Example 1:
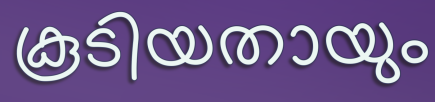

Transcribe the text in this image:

കൂടിയതായും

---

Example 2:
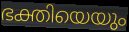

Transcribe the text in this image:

ഭക്തിയെയും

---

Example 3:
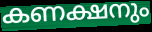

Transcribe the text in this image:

കണക്ഷനും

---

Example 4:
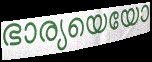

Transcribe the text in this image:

ഭാര്യയെയോ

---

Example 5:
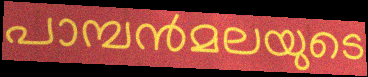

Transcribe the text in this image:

പാമ്പൻമലയുടെ